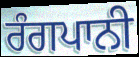
ਰੰਗਪਾਨੀ